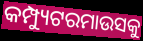
କମ୍ପ୍ୟୁଟରମାଉସକୁ